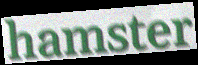
hamster